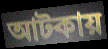
আটকায়